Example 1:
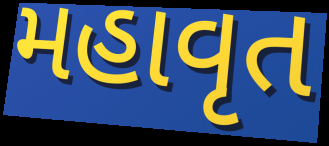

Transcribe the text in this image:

મહાવૃત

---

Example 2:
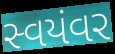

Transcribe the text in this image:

સ્વયંવર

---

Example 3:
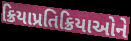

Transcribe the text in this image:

ક્રિયાપ્રતિક્રિયાઓને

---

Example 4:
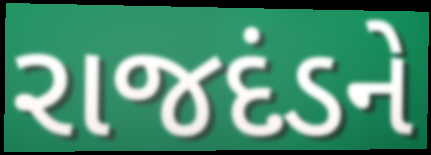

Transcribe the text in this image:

રાજદંડને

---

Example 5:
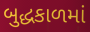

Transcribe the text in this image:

બુદ્ધકાળમાં